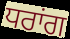
ਧਰਾਂਗ